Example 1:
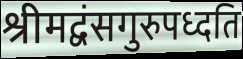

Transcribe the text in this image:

श्रीमद्वंसगुरुपध्दति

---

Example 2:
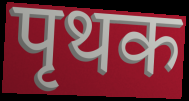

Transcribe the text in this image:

पृथक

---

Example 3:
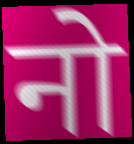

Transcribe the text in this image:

नो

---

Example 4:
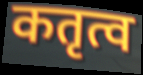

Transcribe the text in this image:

कतृत्व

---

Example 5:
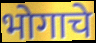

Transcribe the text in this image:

भोगाचे